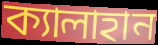
ক্যালাহান